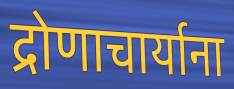
द्रोणाचार्याना